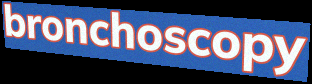
bronchoscopy